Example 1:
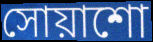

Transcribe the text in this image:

সোয়াশো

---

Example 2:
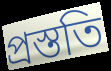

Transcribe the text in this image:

প্রস্ততি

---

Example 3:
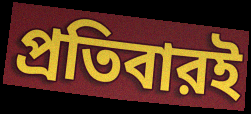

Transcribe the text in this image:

প্রতিবারই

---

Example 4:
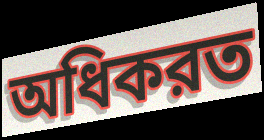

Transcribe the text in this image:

অধিকরত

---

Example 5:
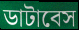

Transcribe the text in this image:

ডাটাবেস